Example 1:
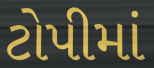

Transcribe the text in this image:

ટોપીમાં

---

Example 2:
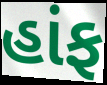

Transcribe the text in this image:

હાંફ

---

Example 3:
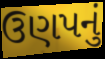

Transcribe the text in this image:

ઉણપનું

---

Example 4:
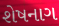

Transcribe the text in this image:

શેષનાગ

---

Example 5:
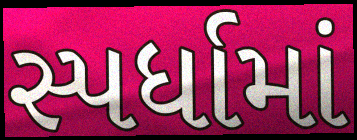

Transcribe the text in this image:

સ્પર્ધામાં